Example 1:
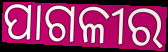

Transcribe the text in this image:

ପାଗଳୀର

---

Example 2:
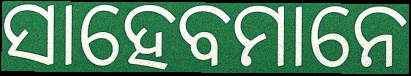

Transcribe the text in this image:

ସାହେବମାନେ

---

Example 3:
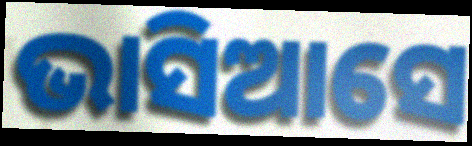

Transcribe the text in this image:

ଭାସିଆସେ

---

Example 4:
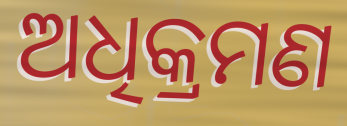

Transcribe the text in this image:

ଅଧିକ୍ରମଣ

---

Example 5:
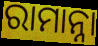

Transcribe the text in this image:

ରାମାନ୍ନା